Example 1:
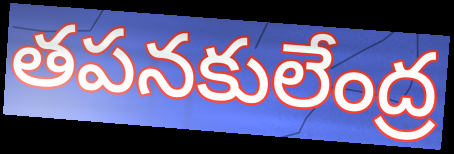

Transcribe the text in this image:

తపనకులేంద్ర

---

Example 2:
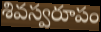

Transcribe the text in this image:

శివస్వరూపం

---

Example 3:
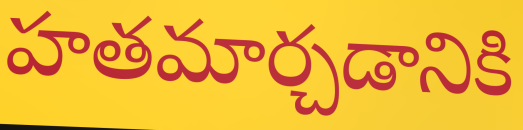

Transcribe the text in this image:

హతమార్చడానికి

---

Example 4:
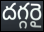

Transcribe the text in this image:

దగ్గరై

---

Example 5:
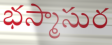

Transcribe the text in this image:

భస్మాసుర